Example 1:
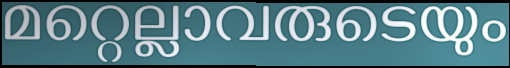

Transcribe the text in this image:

മറ്റെല്ലാവരുടെയും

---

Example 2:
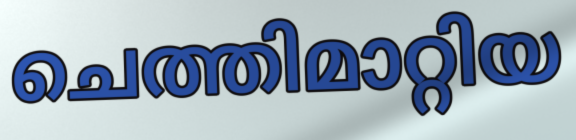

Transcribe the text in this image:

ചെത്തിമാറ്റിയ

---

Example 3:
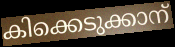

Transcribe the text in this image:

കിക്കെടുക്കാന്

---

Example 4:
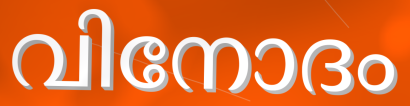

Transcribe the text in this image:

വിനോദം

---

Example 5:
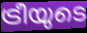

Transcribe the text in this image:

ട്രീയുടെ